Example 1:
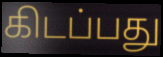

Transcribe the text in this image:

கிடப்பது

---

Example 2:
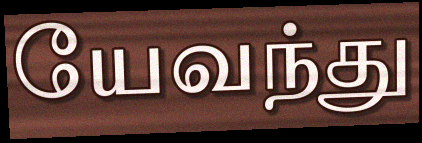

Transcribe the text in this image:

யேவந்து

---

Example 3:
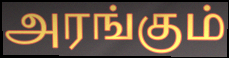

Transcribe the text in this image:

அரங்கும்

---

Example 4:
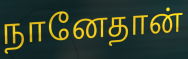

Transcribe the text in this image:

நானேதான்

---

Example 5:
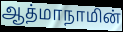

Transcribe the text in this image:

ஆத்மாநாமின்